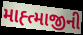
માહ્ત્માજીની